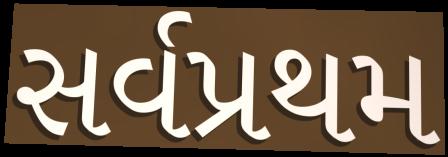
સર્વપ્રથમ